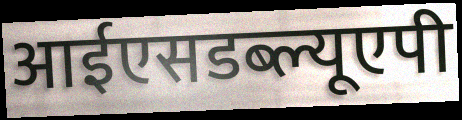
आईएसडब्ल्यूएपी